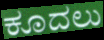
ಕೂದಲು